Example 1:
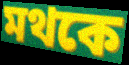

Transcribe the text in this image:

মথকে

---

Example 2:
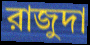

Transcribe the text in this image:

রাজুদা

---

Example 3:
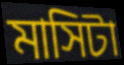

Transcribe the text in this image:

মাসিটা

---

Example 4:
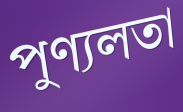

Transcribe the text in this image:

পুণ্যলতা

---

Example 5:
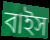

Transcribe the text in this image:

বাইস